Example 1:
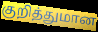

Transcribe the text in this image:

குறித்துமான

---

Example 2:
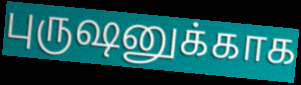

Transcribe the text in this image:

புருஷனுக்காக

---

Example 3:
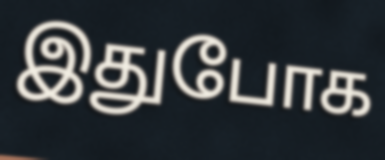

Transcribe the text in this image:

இதுபோக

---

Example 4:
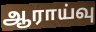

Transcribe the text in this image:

ஆராய்வு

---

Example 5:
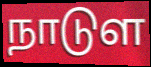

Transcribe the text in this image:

நாடுள